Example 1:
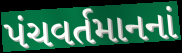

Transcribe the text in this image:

પંચવર્તમાનનાં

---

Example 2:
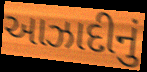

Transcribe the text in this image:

આઝાદીનું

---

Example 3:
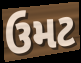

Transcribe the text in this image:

ઉમટ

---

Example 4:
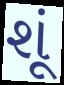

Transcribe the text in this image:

શૂં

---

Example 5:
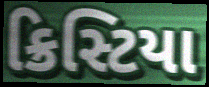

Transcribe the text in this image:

ક્રિસ્ટિયા